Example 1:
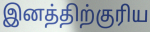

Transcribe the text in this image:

இனத்திற்குரிய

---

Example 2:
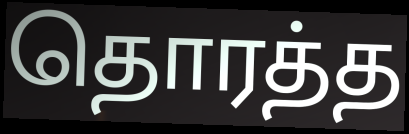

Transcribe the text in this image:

தொரத்த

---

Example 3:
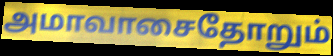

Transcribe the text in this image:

அமாவாசைதோறும்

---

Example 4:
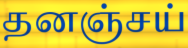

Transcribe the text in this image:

தனஞ்சய்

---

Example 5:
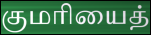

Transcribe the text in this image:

குமரியைத்